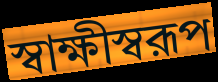
স্বাক্ষীস্বরূপ